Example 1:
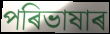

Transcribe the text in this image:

পৰিভাষাৰ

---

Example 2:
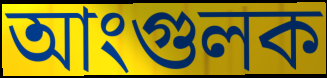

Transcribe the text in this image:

আংগুলক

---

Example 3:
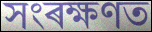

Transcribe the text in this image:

সংৰক্ষণত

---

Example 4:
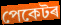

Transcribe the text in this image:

পেকেটৰ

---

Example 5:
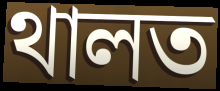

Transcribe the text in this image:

থালত